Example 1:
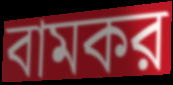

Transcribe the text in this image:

বামকর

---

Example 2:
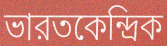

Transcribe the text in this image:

ভারতকেন্দ্রিক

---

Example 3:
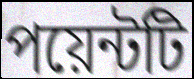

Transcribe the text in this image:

পয়েন্টটি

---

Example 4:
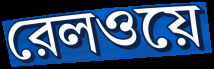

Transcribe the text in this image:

রেলওয়ে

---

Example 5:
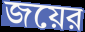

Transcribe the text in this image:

জয়ের